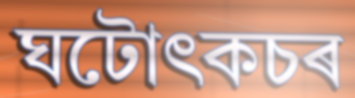
ঘটোৎকচৰ